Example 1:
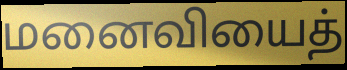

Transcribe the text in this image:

மனைவியைத்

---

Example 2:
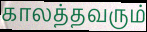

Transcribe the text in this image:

காலத்தவரும்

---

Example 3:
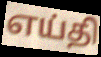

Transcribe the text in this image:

எய்தி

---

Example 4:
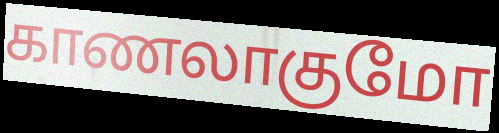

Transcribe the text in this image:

காணலாகுமோ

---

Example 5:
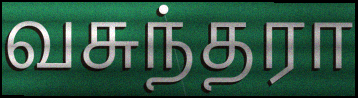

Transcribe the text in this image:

வசுந்தரா